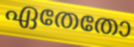
ഏതേതോ